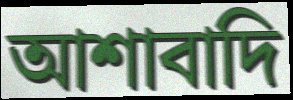
আশাবাদি